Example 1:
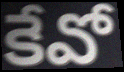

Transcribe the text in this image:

కేవో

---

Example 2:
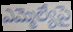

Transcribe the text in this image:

ఎమ్మెల్యేపై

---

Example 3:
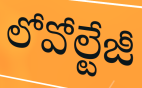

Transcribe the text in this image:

లోవోల్టేజీ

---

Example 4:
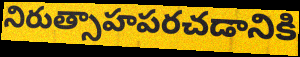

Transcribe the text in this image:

నిరుత్సాహపరచడానికి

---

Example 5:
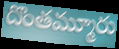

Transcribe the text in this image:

దొంతమ్మూరు